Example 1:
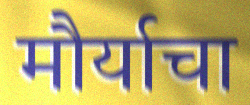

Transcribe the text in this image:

मौर्याचा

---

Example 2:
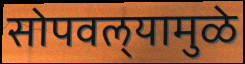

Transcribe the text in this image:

सोपवल्यामुळे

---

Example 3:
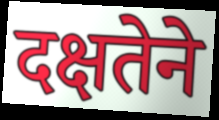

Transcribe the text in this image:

दक्षतेने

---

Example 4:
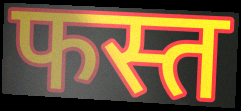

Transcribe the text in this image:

फस्त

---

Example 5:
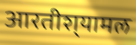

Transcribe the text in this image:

आरतीश्यामल